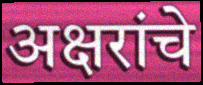
अक्षरांचे